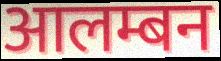
आलम्बन